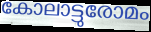
കോലാട്ടുരോമം